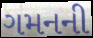
ગમનની